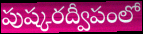
పుష్కరద్వీపంలో